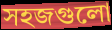
সহজগুলো